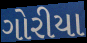
ગોરીયા